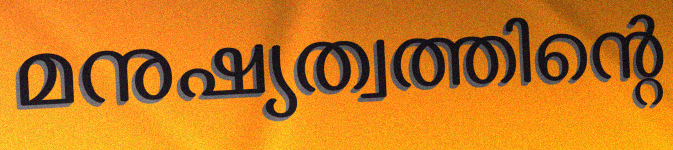
മനുഷ്യത്വത്തിന്റെ